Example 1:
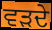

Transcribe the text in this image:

ਵੜਦੇ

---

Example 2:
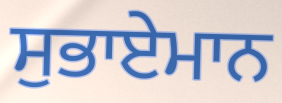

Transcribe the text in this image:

ਸੁਭਾਏਮਾਨ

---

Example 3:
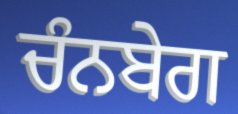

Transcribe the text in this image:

ਚੰਨਬੇਗ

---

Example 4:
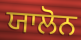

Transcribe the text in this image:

ਯਾਲੋਨ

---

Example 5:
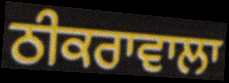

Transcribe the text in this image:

ਠੀਕਰਾਵਾਲਾ